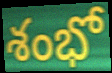
శంభో